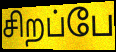
சிறப்பே